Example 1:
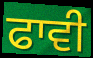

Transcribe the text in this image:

ਫਾਵੀ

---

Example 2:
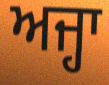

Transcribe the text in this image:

ਅਜ੍ਹਾ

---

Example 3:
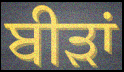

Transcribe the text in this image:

ਬੀੜਾਂ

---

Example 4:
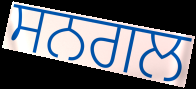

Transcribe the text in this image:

ਸਨਗਲ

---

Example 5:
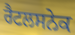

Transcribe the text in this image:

ਰੈਟਲਸਨੇਕ